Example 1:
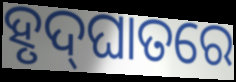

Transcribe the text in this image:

ହୃଦ୍‌ଘାତରେ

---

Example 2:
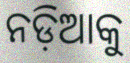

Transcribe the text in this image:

ନଡ଼ିଆକୁ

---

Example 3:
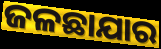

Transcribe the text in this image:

ଜଳଛାଯାର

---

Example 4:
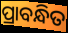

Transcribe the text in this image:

ପ୍ରାବନ୍ଧିତ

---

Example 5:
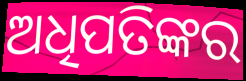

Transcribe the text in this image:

ଅଧିପତିଙ୍କର